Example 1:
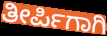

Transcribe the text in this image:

ತೀರ್ಪಿಗಾಗಿ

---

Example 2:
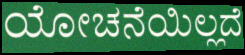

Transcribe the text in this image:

ಯೋಚನೆಯಿಲ್ಲದೆ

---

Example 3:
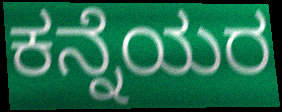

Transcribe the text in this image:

ಕನ್ನೆಯರ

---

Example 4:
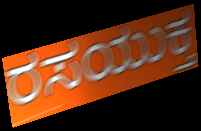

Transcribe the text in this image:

ರಸಯುಕ್ತ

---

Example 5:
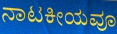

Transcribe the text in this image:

ನಾಟಕೀಯವೂ